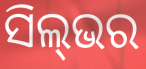
ସିଲ୍‌ଭର